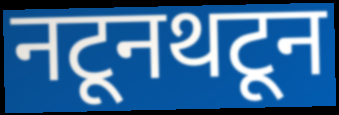
नटूनथटून